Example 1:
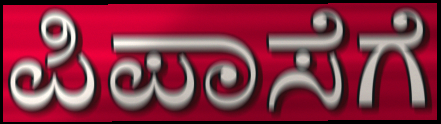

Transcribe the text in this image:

ಪಿಪಾಸೆಗೆ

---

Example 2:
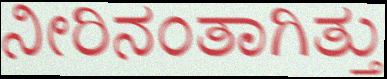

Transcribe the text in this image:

ನೀರಿನಂತಾಗಿತ್ತು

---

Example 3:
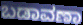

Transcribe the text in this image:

ಬಡಾವಣಾ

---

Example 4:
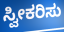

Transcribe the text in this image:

ಸ್ವೀಕರಿಸು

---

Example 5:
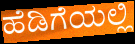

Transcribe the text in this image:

ಹೆಡಿಗೆಯಲ್ಲಿ